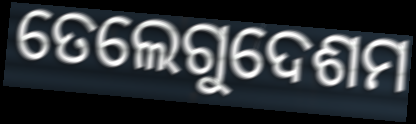
ତେଲେଗୁଦେଶମ